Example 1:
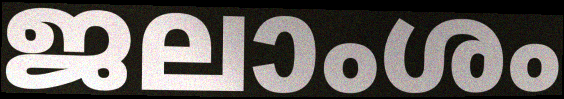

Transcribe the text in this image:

ജലാംശം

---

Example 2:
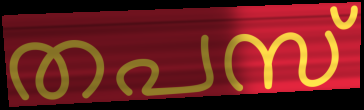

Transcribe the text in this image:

തപസ്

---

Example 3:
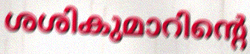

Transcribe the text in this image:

ശശികുമാറിന്റെ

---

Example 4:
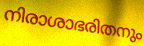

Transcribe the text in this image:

നിരാശാഭരിതനും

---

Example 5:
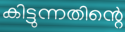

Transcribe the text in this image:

കിട്ടുന്നതിന്റെ